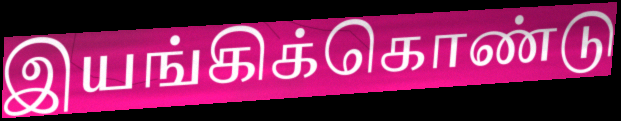
இயங்கிக்கொண்டு